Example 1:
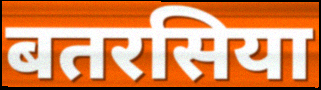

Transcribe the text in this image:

बतरसिया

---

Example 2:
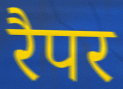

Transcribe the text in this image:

रैपर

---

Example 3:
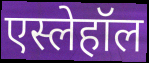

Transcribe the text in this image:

एस्लेहॉल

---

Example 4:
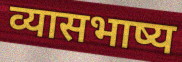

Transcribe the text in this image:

व्यासभाष्य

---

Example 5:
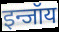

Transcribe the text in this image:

इन्जॉय